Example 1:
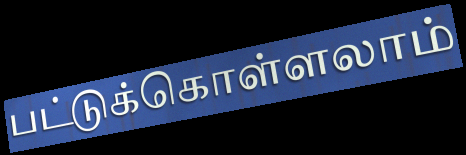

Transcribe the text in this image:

பட்டுக்கொள்ளலாம்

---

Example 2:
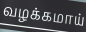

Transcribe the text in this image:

வழக்கமாய்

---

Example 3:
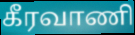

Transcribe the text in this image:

கீரவாணி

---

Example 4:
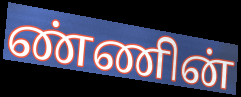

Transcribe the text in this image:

ண்ணின்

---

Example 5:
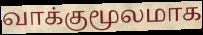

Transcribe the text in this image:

வாக்குமூலமாக